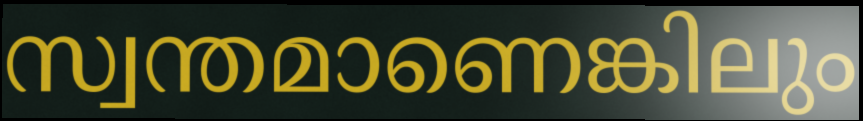
സ്വന്തമാണെങ്കിലും